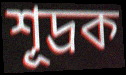
শূদ্ৰক